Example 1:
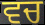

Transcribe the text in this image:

ਵਚ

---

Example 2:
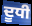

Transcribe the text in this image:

ਦੂਧੀ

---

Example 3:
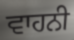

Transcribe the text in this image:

ਵਾਹਨੀ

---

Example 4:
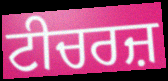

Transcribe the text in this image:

ਟੀਚਰਜ਼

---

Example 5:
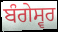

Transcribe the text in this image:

ਬੰਗੇਸ੍ਵਰ